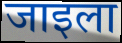
जाइला